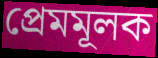
প্রেমমূলক